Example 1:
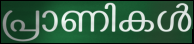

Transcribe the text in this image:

പ്രാണികൾ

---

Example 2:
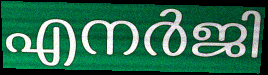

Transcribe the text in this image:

എനർജി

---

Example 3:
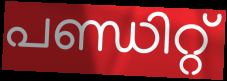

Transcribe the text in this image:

പണ്ഡിറ്റ്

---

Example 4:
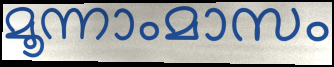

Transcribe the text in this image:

മൂന്നാംമാസം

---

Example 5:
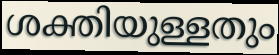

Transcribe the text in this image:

ശക്തിയുള്ളതും